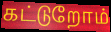
கட்டுறோம்